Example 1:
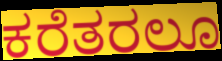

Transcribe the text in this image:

ಕರೆತರಲೂ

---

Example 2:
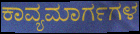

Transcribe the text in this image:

ಕಾವ್ಯಮಾರ್ಗಗಳ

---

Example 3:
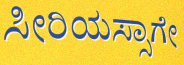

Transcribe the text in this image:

ಸೀರಿಯಸ್ಸಾಗೇ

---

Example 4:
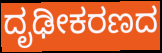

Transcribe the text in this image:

ದೃಢೀಕರಣದ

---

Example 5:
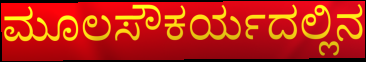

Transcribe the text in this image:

ಮೂಲಸೌಕರ್ಯದಲ್ಲಿನ